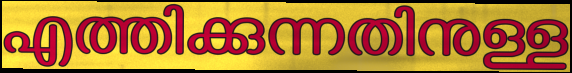
എത്തിക്കുന്നതിനുള്ള